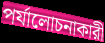
পর্যালোচনাকারী